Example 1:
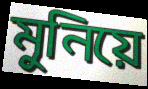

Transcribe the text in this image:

মুনিয়ে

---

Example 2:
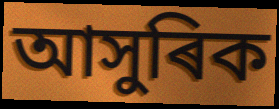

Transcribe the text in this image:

আসুৰিক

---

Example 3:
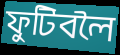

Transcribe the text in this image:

ফুটিবলৈ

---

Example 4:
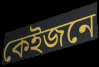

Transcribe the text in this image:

কেইজনে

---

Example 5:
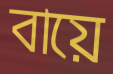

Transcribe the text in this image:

বায়ে